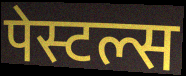
पेस्टल्स